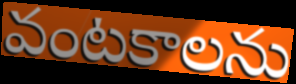
వంటకాలను